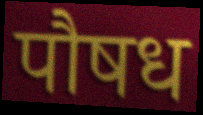
पौषध